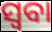
ସ୍ୱବା